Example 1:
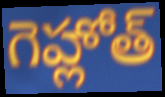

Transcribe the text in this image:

గెహ్లోత్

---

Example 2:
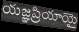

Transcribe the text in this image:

యజ్ఞప్రియాయై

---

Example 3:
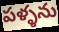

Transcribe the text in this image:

పళ్ళను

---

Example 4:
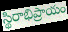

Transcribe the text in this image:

స్థిరాభిప్రాయం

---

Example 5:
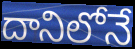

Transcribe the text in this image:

దానిలోనే